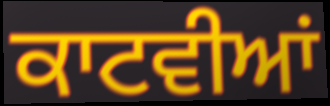
ਕਾਟਵੀਆਂ